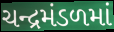
ચન્દ્રમંડળમાં